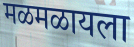
मळमळायला